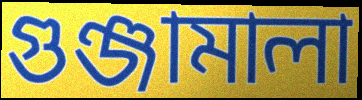
গুঞ্জামালা